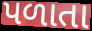
પળાતા